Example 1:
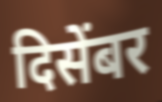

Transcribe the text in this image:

दिसेंबर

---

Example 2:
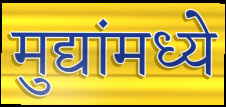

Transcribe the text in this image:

मुद्यांमध्ये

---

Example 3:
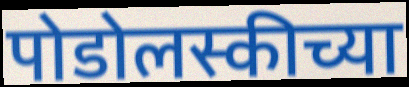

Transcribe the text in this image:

पोडोलस्कीच्या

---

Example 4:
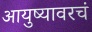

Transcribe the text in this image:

आयुष्यावरचं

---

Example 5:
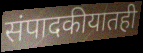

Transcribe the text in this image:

संपादकीयातही